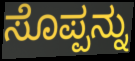
ಸೊಪ್ಪನ್ನು